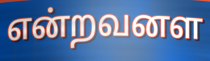
என்றவனள